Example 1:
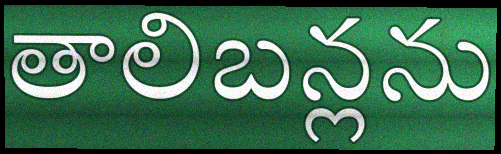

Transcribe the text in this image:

తాలిబన్లను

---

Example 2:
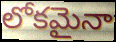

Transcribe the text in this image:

లోకమైనా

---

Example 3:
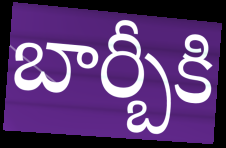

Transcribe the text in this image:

బార్బీకి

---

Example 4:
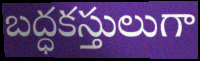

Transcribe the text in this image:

బద్ధకస్తులుగా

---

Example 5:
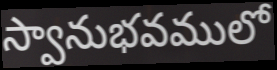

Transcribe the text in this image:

స్వానుభవములో